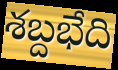
శబ్దభేది